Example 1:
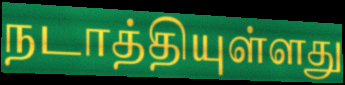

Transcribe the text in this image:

நடாத்தியுள்ளது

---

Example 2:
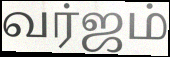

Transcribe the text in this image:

வர்ஜம்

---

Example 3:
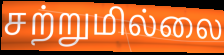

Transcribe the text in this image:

சற்றுமில்லை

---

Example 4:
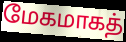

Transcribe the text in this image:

மேகமாகத்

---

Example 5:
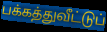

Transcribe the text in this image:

பக்கத்துவீட்டுப்